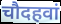
चौदहवां